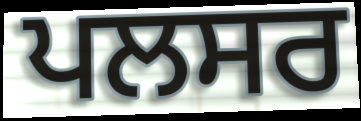
ਪਲਸਰ